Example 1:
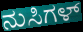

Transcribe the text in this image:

ನುಸಿಗಳ್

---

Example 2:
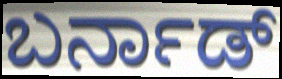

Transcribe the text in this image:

ಬರ್ನಾಡ್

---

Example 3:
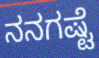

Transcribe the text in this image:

ನನಗಷ್ಟೆ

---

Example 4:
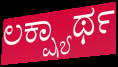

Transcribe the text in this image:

ಲಕ್ಷ್ಯಾರ್ಥ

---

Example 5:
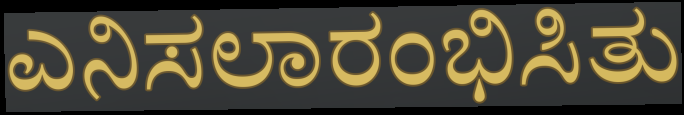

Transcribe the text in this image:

ಎನಿಸಲಾರಂಭಿಸಿತು